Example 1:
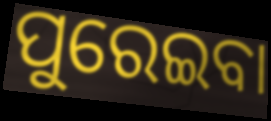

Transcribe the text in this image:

ପୁରେଇବା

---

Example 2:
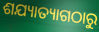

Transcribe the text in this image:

ଶଯ୍ୟାତ୍ୟାଗଠାରୁ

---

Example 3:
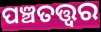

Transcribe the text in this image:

ପଞ୍ଚତତ୍ତ୍ୱର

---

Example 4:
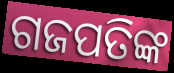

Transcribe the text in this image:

ଗଜପତିଙ୍କ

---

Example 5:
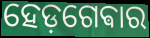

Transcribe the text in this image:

ହେଡ଼ଗେଵାର